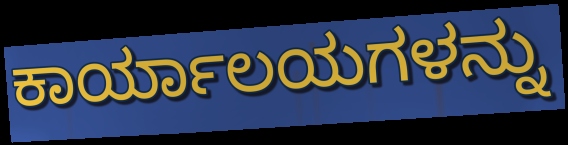
ಕಾರ್ಯಾಲಯಗಳನ್ನು